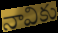
నావికు